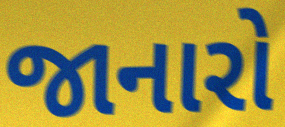
જાનારો